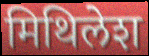
मिथिलेश